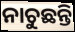
ନାଚୁଛନ୍ତି